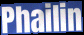
Phailin